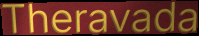
Theravada